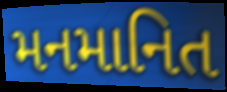
મનમાનિત